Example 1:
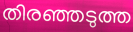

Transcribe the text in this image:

തിരഞ്ഞടുത്ത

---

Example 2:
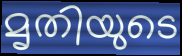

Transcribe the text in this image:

മൃതിയുടെ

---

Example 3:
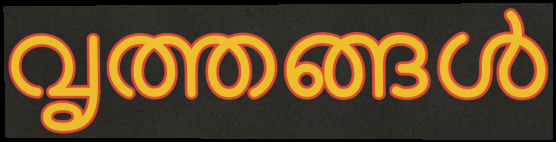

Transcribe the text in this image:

വൃത്തങ്ങൾ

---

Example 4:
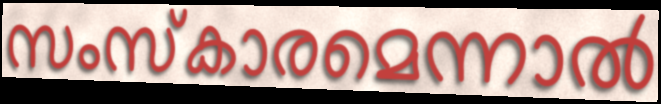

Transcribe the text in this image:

സംസ്കാരമെന്നാൽ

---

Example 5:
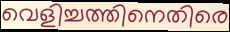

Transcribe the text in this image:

വെളിച്ചത്തിനെതിരെ